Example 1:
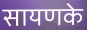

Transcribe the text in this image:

सायणके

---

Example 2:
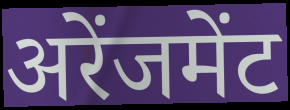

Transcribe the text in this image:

अरेंजमेंट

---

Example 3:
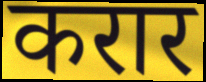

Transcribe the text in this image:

करार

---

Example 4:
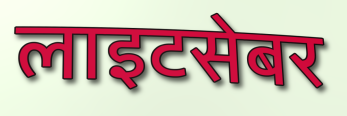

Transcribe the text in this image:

लाइटसेबर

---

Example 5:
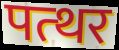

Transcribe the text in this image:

पत्‍थर